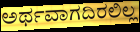
ಅರ್ಥವಾಗದಿರಲಿಲ್ಲ